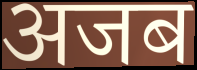
अजब